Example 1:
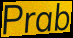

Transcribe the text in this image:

Prab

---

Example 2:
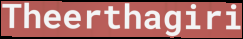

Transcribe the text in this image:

Theerthagiri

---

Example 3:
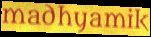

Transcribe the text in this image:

madhyamik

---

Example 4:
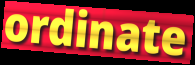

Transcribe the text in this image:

ordinate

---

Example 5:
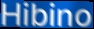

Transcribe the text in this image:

Hibino